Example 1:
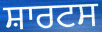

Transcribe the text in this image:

ਸ਼ਾਰਟਸ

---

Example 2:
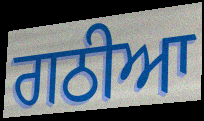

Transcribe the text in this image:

ਗਠੀਆ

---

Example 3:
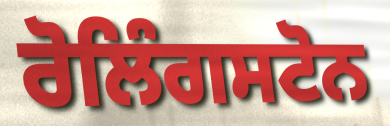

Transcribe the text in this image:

ਰੋਲਿੰਗਸਟੋਨ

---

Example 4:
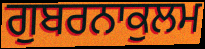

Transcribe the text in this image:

ਗੁਬਰਨਾਕੁਲਮ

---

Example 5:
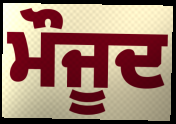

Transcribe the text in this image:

ਮੌਜੂਦ